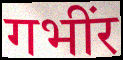
गभींर